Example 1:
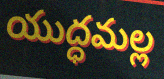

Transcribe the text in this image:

యుద్ధమల్ల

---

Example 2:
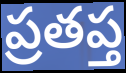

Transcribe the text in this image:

ప్రతప్త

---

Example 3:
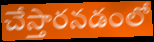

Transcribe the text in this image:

చేస్తారనడంలో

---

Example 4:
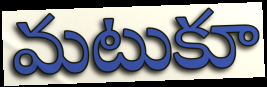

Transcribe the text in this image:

మటుకూ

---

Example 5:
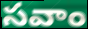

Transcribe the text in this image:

సవాం